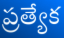
ప్రత్యేక